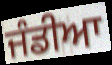
ਜੰਡੀਆ